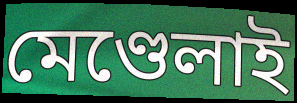
মেণ্ডেলাই